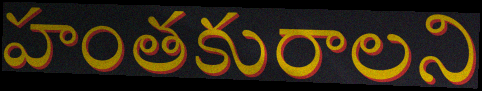
హంతకురాలని